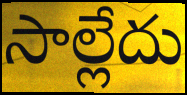
సాల్లేదు